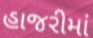
હાજરીમાં